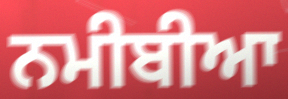
ਨਮੀਬੀਆ